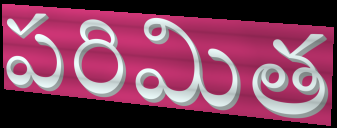
పరిమిత